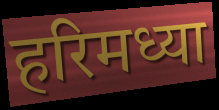
हरिमध्या